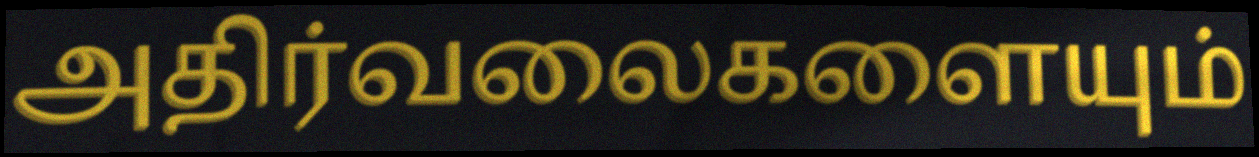
அதிர்வலைகளையும்